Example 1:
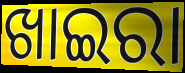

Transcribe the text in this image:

ଖାଇରା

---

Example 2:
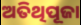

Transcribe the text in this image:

ଅତିଥିପୂଜା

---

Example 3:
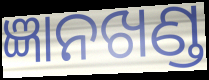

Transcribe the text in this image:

ଜ୍ଞାନଖଣ୍ଡ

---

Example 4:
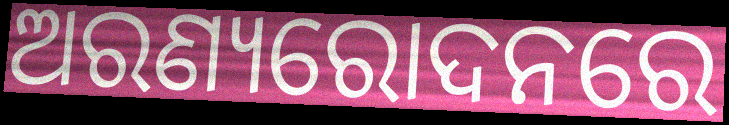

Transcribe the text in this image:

ଅରଣ୍ୟରୋଦନରେ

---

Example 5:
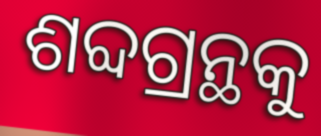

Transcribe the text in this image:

ଶବ୍ଦଗ୍ରନ୍ଥକୁ